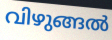
വിഴുങ്ങൽ